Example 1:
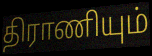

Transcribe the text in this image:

திராணியும்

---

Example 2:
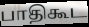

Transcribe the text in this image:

பாதிகூட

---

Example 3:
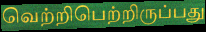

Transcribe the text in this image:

வெற்றிபெற்றிருப்பது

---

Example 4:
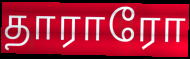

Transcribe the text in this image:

தாராரோ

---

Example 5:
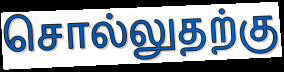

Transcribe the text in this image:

சொல்லுதற்கு